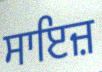
ਸਾਇਜ਼